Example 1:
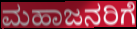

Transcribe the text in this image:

ಮಹಾಜನರಿಗೆ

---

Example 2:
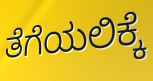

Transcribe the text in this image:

ತೆಗೆಯಲಿಕ್ಕೆ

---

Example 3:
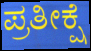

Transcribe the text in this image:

ಪ್ರತೀಕ್ಷೆ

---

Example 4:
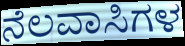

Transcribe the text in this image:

ನೆಲವಾಸಿಗಳ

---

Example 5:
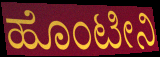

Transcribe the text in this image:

ಹೊಂಟೀನಿ